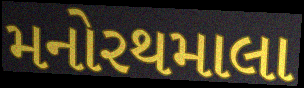
મનોરથમાલા